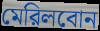
মেরিলবোন